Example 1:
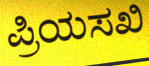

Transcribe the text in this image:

ಪ್ರಿಯಸಖಿ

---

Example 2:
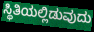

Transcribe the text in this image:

ಸ್ಥಿತಿಯಲ್ಲಿಡುವುದು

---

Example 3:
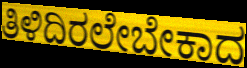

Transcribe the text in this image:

ತಿಳಿದಿರಲೇಬೇಕಾದ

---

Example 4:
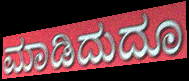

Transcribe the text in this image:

ಮಾಡಿದುದೂ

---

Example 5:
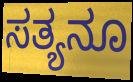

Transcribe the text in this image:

ಸತ್ಯನೂ